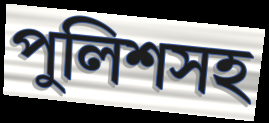
পুলিশসহ